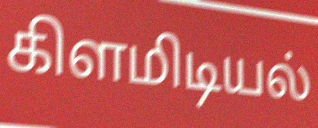
கிளமிடியல்